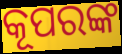
କୂପରଙ୍କ